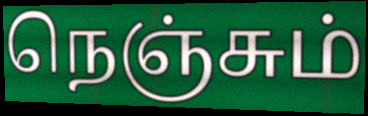
நெஞ்சும்